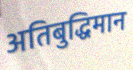
अतिबुद्धिमान